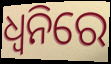
ଧ୍ୱନିରେ